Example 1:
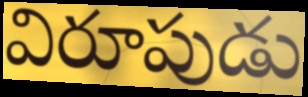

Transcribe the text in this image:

విరూపుడు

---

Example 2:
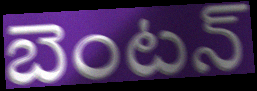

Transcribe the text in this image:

బెంటన్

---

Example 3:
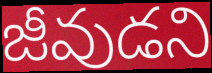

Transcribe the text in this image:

జీవుడని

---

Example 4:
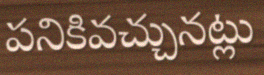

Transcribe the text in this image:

పనికివచ్చునట్లు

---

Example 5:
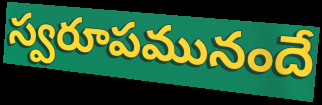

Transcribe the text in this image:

స్వరూపమునందే